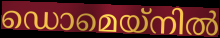
ഡൊമെയ്നിൽ